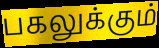
பகலுக்கும்